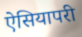
ऐसियापरी